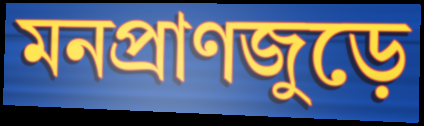
মনপ্রাণজুড়ে